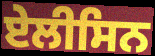
ਏਲੀਸਿਨ